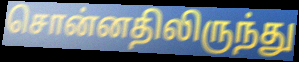
சொன்னதிலிருந்து